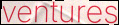
ventures